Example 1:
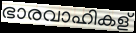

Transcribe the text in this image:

ഭാരവാഹികള്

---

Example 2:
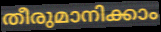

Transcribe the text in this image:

തീരുമാനിക്കാം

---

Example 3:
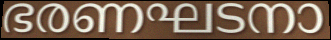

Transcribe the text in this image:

ഭരണഘടനാ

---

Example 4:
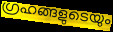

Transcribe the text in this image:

ഗ്രഹങ്ങളുടെയും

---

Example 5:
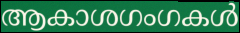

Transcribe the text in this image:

ആകാശഗംഗകൾ